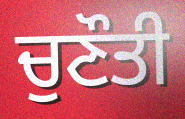
ਚੁਣੌਤੀ